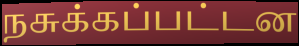
நசுக்கப்பட்டன